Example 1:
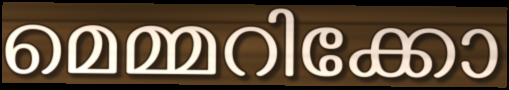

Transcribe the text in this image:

മെമ്മറിക്കോ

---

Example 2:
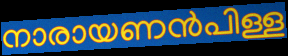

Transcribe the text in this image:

നാരായണൻപിള്ള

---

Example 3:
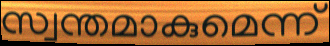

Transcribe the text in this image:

സ്വന്തമാകുമെന്ന്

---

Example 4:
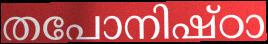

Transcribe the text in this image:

തപോനിഷ്ഠാ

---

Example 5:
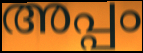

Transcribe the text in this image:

അപ്പം